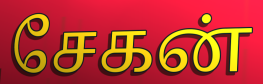
சேகன்